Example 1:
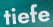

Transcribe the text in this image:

tiefe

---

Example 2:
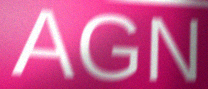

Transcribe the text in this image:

AGN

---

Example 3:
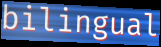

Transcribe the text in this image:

bilingual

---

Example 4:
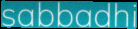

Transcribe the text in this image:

sabbadhi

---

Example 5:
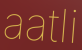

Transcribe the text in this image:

aatli